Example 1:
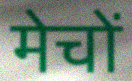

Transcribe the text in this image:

मेचों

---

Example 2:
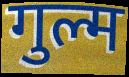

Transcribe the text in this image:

गुल्म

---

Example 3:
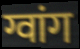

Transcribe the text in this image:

ग्वांग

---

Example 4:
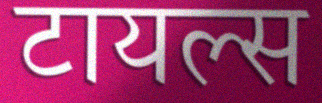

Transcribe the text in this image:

टायल्स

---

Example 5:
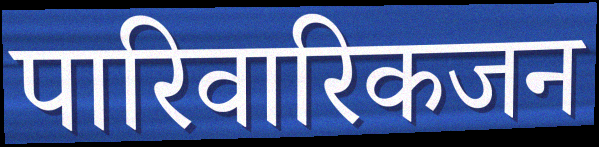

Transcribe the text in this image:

पारिवारिकजन